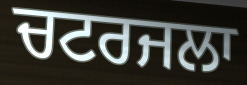
ਚਟਰਜਲਾ